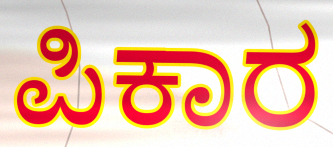
ಪಿಕಾರ